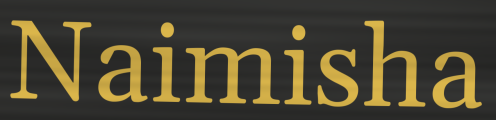
Naimisha